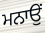
ਮਨਾਉਂ